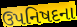
ઉપનિષદના